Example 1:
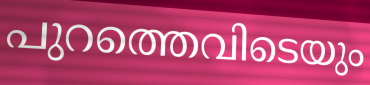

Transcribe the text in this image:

പുറത്തെവിടെയും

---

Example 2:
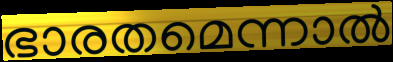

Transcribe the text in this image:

ഭാരതമെന്നാൽ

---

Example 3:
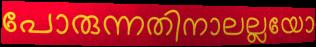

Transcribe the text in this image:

പോരുന്നതിനാലല്ലയോ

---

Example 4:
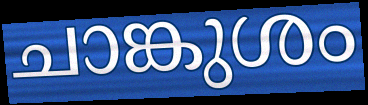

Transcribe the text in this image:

ചാങ്കുശം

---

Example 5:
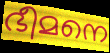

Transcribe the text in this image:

ഭീമനെ